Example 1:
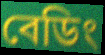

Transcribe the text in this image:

বেডিং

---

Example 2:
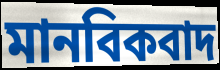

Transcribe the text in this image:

মানবিকবাদ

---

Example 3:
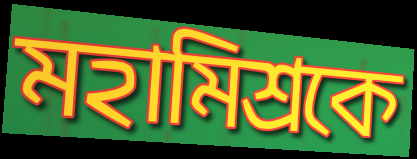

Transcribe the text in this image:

মহামিশ্রকে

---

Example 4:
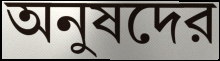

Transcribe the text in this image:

অনুষদের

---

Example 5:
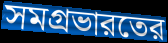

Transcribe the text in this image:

সমগ্রভারতের